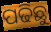
ପଢିଛୁ